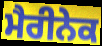
ਮੈਰੀਨੇਕ